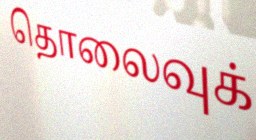
தொலைவுக்